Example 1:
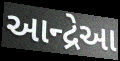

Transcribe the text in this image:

આન્દ્રેઆ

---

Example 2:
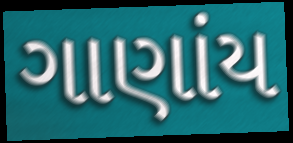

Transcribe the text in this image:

ગાણાંય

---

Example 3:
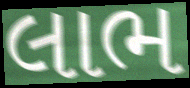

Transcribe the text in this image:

લાભ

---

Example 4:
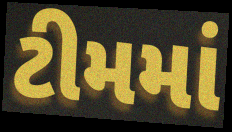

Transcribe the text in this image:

ટીમમાં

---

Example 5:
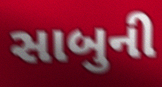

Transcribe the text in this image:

સાબુની